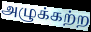
அழுக்கற்ற